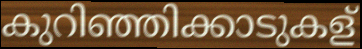
കുറിഞ്ഞിക്കാടുകള്